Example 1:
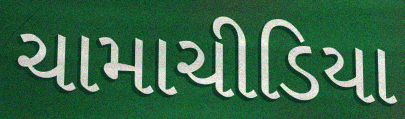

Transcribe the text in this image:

ચામાચીડિયા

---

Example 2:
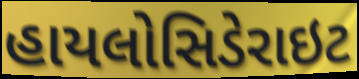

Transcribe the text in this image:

હાયલોસિડેરાઇટ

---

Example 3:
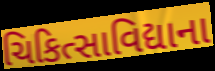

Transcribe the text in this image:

ચિકિત્સાવિદ્યાના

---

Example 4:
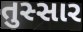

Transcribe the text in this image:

તુસ્સાર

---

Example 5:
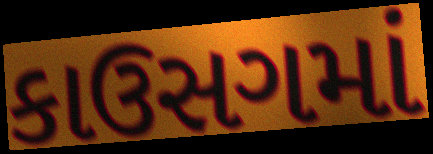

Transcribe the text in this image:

કાઉસગમાં